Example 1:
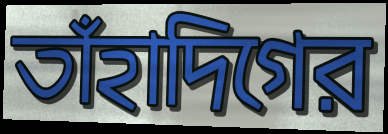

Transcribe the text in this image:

তাঁহাদিগের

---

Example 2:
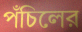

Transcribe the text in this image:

পঁচিলের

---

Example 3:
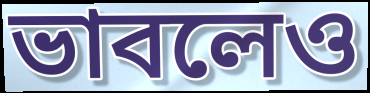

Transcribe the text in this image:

ভাবলেও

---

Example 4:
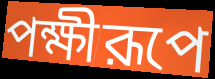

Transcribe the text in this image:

পক্ষীরূপে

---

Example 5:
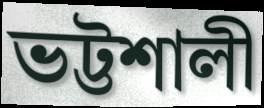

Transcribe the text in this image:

ভট্টশালী